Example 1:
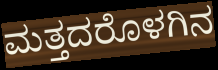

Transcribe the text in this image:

ಮತ್ತದರೊಳಗಿನ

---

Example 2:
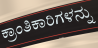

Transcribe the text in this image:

ಕ್ರಾಂತಿಕಾರಿಗಳನ್ನು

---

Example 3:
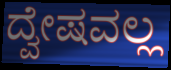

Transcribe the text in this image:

ದ್ವೇಷವಲ್ಲ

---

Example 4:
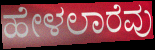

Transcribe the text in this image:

ಹೇಳಲಾರೆವು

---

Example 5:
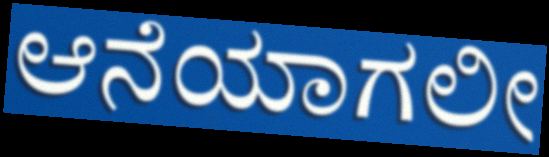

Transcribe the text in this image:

ಆನೆಯಾಗಲೀ